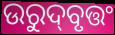
ଉରୁଦ୍‌ବୃତ୍ତଂ